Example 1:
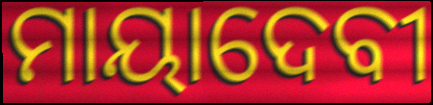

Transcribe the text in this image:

ମାୟାଦେବୀ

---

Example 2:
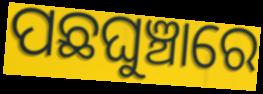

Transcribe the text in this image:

ପଛଘୁଞ୍ଚାରେ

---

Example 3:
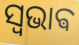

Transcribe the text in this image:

ସ୍ଵଭାଵ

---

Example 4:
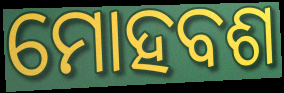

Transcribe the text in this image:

ମୋହବଶ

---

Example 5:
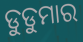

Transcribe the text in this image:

ଡୁଡୁମାର